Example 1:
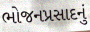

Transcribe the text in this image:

ભોજનપ્રસાદનું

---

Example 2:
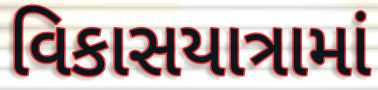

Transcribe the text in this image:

વિકાસયાત્રામાં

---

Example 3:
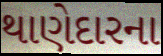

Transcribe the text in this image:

થાણેદારના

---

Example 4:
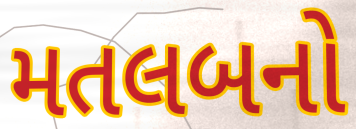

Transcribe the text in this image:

મતલબનો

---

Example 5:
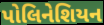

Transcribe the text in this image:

પોલિનેશિયન